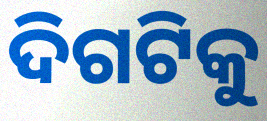
ଦିଗଟିକୁ